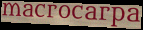
macrocarpa